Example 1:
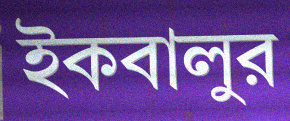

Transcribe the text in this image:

ইকবালুর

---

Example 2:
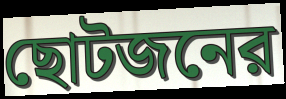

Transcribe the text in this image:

ছোটজনের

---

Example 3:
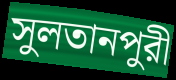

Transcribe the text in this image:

সুলতানপুরী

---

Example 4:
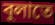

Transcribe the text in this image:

বুলাতে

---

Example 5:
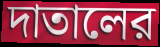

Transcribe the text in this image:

দাতালের